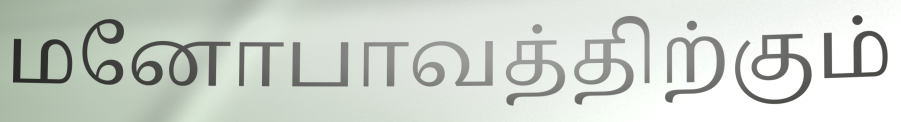
மனோபாவத்திற்கும்